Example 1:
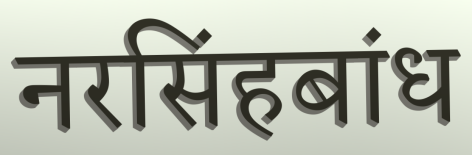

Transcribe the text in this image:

नरसिंहबांध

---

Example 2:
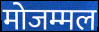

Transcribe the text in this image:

मोजम्मल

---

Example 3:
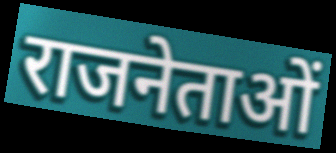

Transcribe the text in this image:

राजनेताओं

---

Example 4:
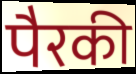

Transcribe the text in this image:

पैरकी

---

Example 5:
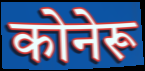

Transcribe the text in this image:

कोनेरू